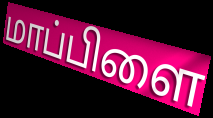
மாப்பிளை